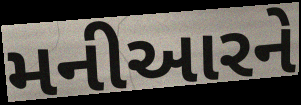
મનીઆરને